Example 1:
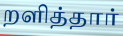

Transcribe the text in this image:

றளித்தார்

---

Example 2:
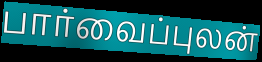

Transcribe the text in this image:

பார்வைப்புலன்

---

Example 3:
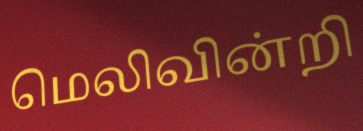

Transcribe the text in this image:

மெலிவின்றி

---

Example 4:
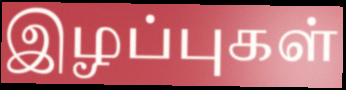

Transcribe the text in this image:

இழப்புகள்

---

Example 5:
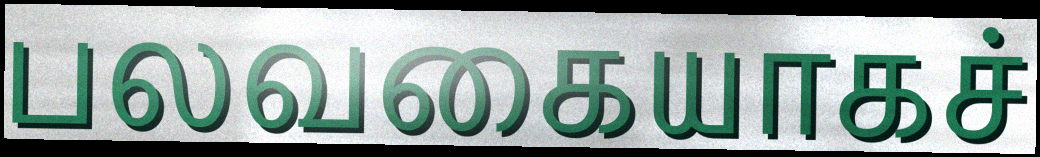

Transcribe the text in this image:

பலவகையாகச்